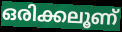
ഒരിക്കലൂണ്